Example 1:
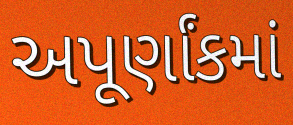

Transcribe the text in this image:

અપૂર્ણાંકમાં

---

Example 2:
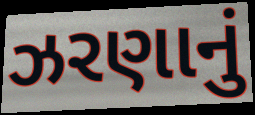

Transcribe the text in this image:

ઝરણાનું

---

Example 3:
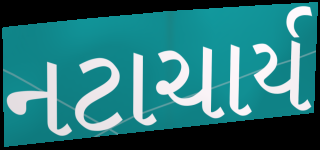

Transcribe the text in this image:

નટાચાર્ય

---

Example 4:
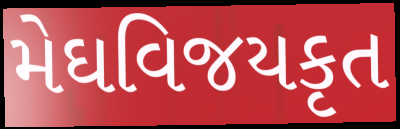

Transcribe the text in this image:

મેઘવિજયકૃત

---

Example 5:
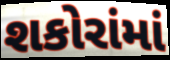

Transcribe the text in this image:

શકોરાંમાં